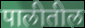
पालीतील